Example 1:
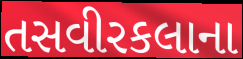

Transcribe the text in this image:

તસવીરકલાના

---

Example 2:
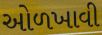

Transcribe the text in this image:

ઓળખાવી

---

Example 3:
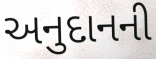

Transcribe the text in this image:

અનુદાનની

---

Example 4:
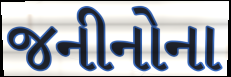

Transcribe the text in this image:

જનીનોના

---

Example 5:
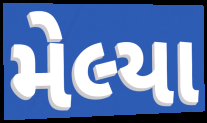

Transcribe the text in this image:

મેલ્યા